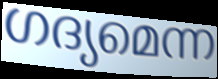
ഗദ്യമെന്ന